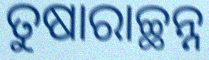
ତୁଷାରାଚ୍ଛନ୍ନ